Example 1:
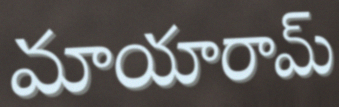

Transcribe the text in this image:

మాయారామ్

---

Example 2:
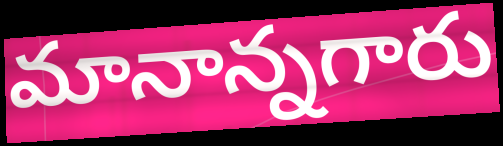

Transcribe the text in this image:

మానాన్నగారు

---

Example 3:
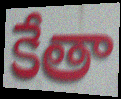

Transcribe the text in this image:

కేతా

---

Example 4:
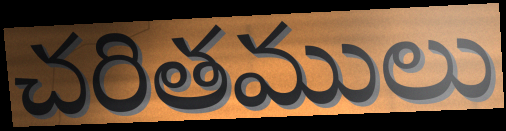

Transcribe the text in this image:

చరితములు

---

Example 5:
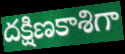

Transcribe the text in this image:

దక్షిణకాశిగా